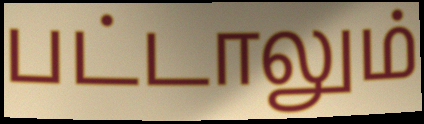
பட்டாலும்